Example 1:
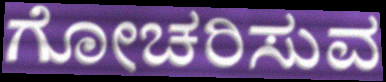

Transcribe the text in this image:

ಗೋಚರಿಸುವ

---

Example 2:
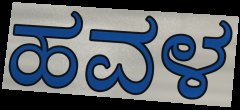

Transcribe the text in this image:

ಹವಳ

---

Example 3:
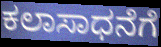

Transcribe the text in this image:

ಕಲಾಸಾಧನೆಗೆ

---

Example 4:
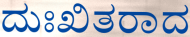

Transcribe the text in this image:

ದುಃಖಿತರಾದ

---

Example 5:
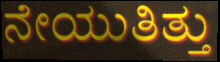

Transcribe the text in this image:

ನೇಯುತಿತ್ತು